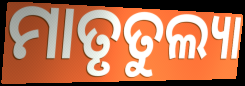
ମାତୃତୁଲ୍ୟା